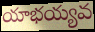
యాభయ్యవ